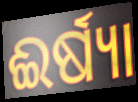
ଈର୍ଷ୍ୟା